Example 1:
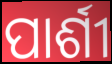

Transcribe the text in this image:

ପାର୍ଶୀ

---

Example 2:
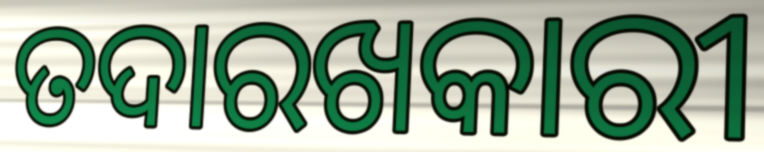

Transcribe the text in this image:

ତଦାରଖକାରୀ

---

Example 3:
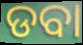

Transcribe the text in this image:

ଡବା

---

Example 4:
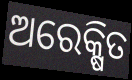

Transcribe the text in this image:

ଅରେକ୍ଷିତ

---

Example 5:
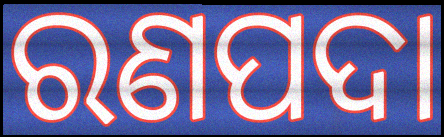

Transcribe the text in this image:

ରଣପଦା